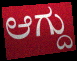
ಆಗ್ದು